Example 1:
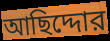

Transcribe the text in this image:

আছিদ্দোর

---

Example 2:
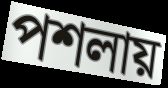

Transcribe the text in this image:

পশলায়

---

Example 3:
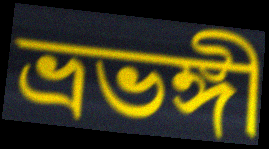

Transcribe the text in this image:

ভ্রভঙ্গী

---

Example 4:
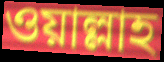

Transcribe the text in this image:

ওয়াল্লাহ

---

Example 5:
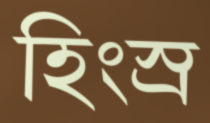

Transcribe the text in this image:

হিংস্র